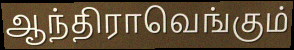
ஆந்திராவெங்கும்